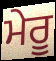
ਮੇਰੂ